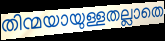
തിന്മയായുള്ളതല്ലാതെ